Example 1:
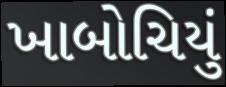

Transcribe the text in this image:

ખાબોચિયું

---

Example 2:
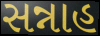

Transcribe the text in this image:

સન્નાહ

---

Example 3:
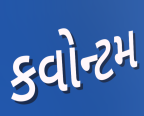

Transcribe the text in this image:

કવોન્ટમ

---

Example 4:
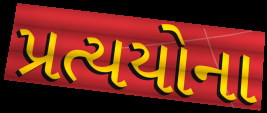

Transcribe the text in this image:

પ્રત્યયોના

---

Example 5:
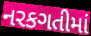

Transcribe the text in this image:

નરકગતીમાં